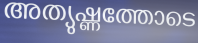
അത്യുഷ്ണത്തോടെ